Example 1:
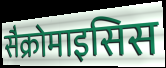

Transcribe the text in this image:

सैक्रोमाइसिस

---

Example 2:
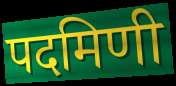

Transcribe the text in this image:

पदमिणी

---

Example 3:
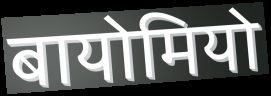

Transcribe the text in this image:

बायोमियो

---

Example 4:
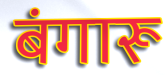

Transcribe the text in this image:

बंगारू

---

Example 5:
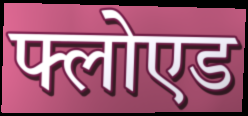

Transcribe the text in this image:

फ्लोएड